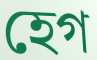
হেগ